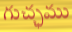
గుచ్ఛము